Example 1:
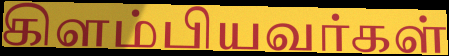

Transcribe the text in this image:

கிளம்பியவர்கள்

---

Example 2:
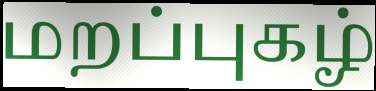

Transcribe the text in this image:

மறப்புகழ்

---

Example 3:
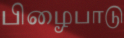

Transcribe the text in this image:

பிழைபாடு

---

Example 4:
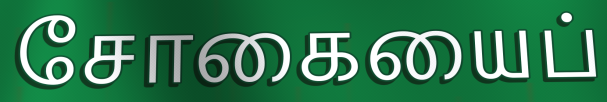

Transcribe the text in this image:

சோகையைப்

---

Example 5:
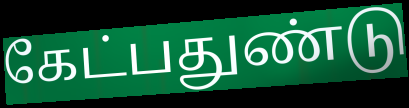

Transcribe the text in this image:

கேட்பதுண்டு